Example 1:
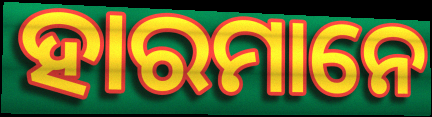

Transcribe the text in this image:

ହାରମାନେ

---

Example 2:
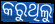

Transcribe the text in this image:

କରୁଥିଲୁ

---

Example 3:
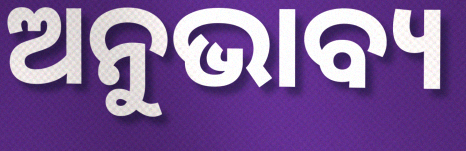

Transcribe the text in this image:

ଅନୁଭାବ୍ୟ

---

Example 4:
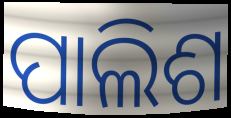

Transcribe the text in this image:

ପାଲିଶ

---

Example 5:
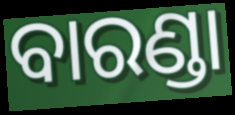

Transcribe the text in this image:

ବାରଣ୍ଡା